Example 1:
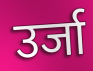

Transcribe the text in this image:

उर्जा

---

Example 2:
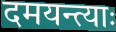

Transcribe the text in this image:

दमयन्त्याः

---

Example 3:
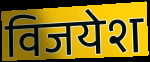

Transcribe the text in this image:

विजयेश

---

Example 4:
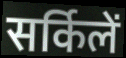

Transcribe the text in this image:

सर्किलें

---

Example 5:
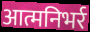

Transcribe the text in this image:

आत्मनिभर्र